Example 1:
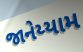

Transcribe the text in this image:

જાનેય્યામ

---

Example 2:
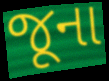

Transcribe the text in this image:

જૂના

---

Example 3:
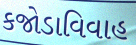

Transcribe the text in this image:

કજોડાવિવાહ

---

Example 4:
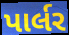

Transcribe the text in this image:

પાર્લર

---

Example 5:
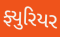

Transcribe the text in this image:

ફ્યુરિયર